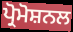
ਪ੍ਰੋਮੋਸ਼ਨਲ